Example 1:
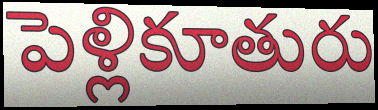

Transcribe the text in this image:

పెళ్లికూతురు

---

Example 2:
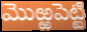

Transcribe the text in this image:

మొఱ్ఱపెట్టి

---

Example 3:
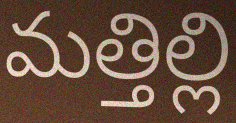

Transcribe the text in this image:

మత్తిల్లి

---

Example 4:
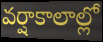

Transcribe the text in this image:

వర్షాకాలాల్లో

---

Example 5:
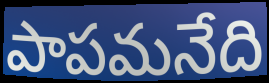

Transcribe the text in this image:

పాపమనేది